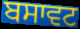
ਬਸਾਵਟ